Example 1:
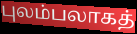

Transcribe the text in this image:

புலம்பலாகத்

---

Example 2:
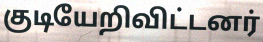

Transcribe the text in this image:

குடியேறிவிட்டனர்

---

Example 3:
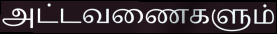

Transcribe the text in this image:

அட்டவணைகளும்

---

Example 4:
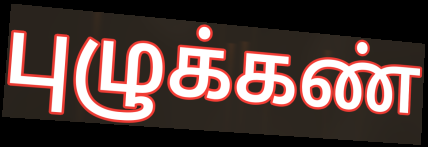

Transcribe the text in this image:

புழுக்கண்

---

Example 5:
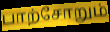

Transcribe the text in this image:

பாற்சோறும்